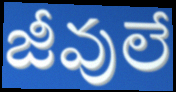
జీవులే